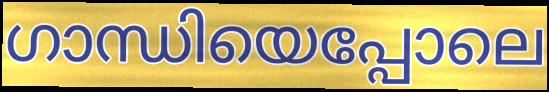
ഗാന്ധിയെപ്പോലെ